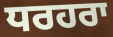
ਧਰਹਰਾ